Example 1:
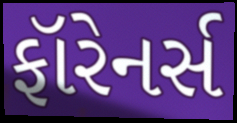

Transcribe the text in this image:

ફૉરેનર્સ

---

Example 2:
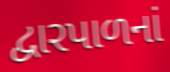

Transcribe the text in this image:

દ્વારપાળનાં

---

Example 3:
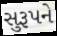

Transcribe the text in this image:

સુરૂપને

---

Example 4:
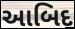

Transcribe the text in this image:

આબિદ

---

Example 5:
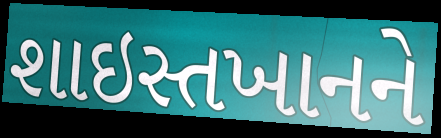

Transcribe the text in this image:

શાઇસ્તખાનને